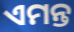
ଏମନ୍ତ